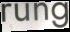
rung